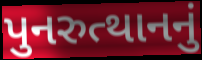
પુનરુત્થાનનું